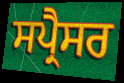
ਸਪ੍ਰੈਸਰ